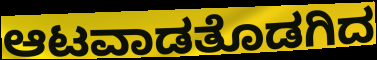
ಆಟವಾಡತೊಡಗಿದ